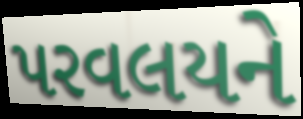
પરવલયને